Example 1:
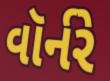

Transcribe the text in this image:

વૉર્નરે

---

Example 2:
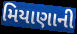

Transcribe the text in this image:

મિયાણાની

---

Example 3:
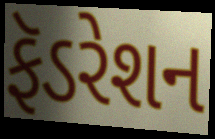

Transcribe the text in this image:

ફૅડરેશન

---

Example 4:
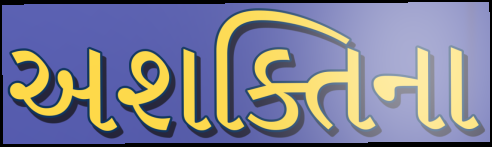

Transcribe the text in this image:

અશક્તિના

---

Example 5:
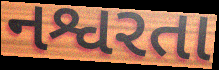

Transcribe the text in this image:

નશ્વરતા